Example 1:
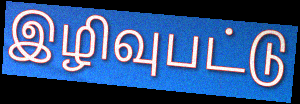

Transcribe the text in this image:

இழிவுபட்டு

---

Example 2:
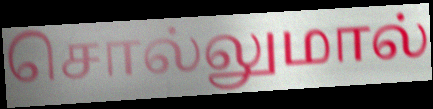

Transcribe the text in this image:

சொல்லுமால்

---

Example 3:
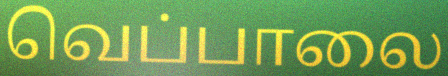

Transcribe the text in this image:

வெப்பாலை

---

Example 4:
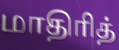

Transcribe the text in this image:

மாதிரித்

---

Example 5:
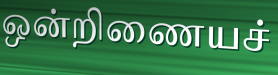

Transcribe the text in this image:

ஒன்றிணையச்